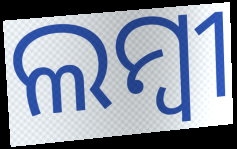
ଲମ୍ବୀ